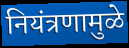
नियंत्रणामुळे